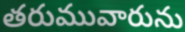
తరుమువారును